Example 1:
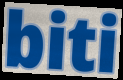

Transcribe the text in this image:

biti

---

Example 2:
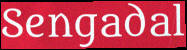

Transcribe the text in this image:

Sengadal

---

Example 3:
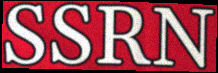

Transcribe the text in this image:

SSRN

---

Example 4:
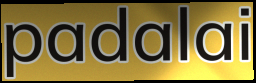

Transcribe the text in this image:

padalai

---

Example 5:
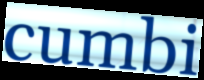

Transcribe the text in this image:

cumbi